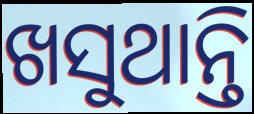
ଖସୁଥାନ୍ତି